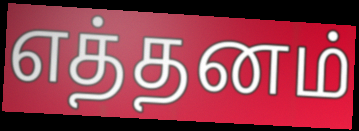
எத்தனம்